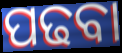
ପଢବା